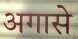
अगासे